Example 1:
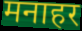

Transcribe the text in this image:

मनाहर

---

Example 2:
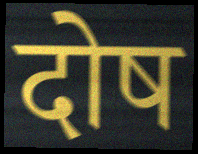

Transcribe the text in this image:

दोष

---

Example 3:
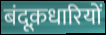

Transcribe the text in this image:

बंदूक़धारियों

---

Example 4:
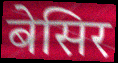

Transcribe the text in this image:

बेसिर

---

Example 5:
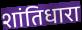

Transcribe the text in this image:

शांतिधारा